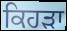
ਕਿਹੜਾ